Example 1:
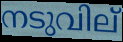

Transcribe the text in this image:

നടുവില്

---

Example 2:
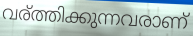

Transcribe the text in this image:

വര്ത്തിക്കുന്നവരാണ്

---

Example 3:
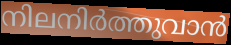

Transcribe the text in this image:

നിലനിർത്തുവാൻ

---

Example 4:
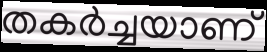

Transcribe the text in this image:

തകർച്ചയാണ്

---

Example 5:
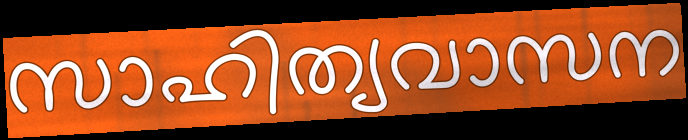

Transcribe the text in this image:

സാഹിത്യവാസന